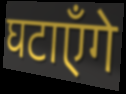
घटाएँगे